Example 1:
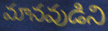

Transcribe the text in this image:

మానవుడిని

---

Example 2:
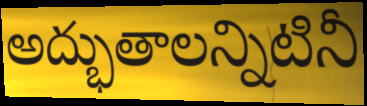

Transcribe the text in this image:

అద్భుతాలన్నిటినీ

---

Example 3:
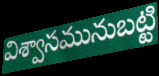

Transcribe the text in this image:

విశ్వాసమునుబట్టి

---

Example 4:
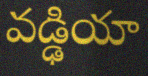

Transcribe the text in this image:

వడ్ఢియా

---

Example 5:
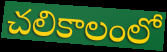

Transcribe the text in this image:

చలికాలంలో